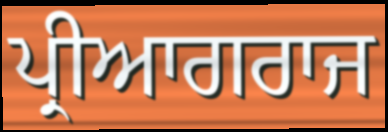
ਪ੍ਰੀਆਗਰਾਜ